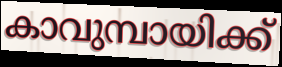
കാവുമ്പായിക്ക്